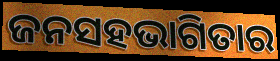
ଜନସହଭାଗିତାର